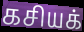
கசியக்